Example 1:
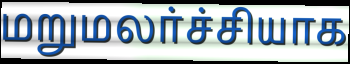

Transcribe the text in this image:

மறுமலர்ச்சியாக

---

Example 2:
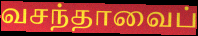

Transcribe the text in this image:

வசந்தாவைப்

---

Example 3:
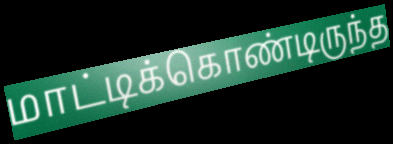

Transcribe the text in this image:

மாட்டிக்கொண்டிருந்த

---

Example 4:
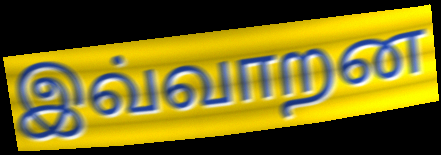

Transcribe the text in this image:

இவ்வாறன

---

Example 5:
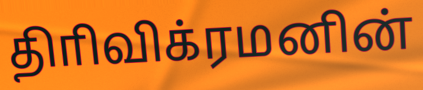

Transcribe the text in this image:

திரிவிக்ரமனின்